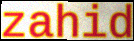
zahid